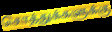
சொத்துக்களுக்கு